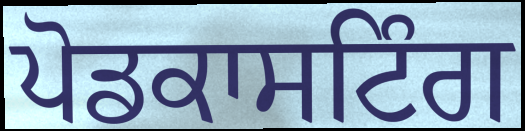
ਪੋਡਕਾਸਟਿੰਗ